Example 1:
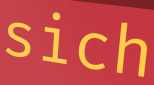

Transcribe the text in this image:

sich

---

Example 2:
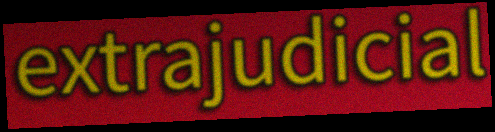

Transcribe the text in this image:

extrajudicial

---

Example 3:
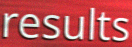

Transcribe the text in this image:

results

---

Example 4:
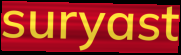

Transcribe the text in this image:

suryast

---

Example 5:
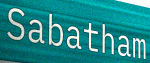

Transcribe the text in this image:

Sabatham